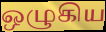
ஒழுகிய